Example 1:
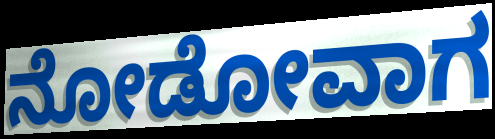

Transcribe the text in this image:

ನೋಡೋವಾಗ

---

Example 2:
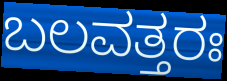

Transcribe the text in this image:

ಬಲವತ್ತರಃ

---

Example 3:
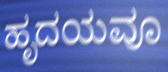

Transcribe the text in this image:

ಹೃದಯವೂ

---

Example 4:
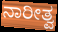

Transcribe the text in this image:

ನಾರೀತ್ವ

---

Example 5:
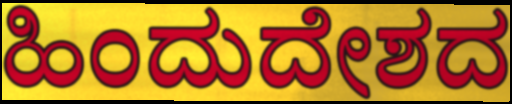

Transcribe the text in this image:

ಹಿಂದುದೇಶದ